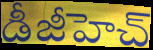
డీజీహెచ్